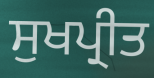
ਸੁਖਪ੍ਰੀਤ